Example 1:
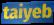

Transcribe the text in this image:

taiyeb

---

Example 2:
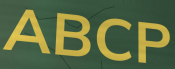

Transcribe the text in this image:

ABCP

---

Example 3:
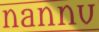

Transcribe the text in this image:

nannu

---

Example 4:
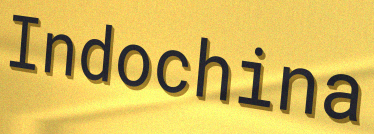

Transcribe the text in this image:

Indochina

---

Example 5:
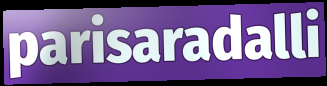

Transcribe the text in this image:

parisaradalli